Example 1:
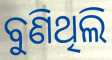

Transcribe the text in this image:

ବୁଣିଥିଲି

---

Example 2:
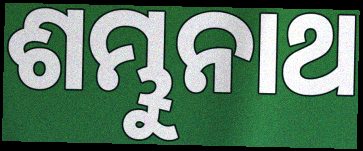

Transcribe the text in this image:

ଶମ୍ଭୁନାଥ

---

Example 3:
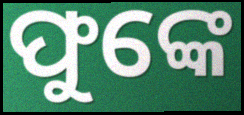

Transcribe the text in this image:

ଫୁଙ୍କେ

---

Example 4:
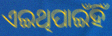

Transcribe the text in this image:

ଏଇଥିପାଇଁହିଁ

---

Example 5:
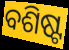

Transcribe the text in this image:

ବଶିଷ୍ଟ